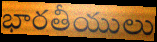
భారతీయులు